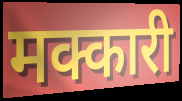
मक्कारी